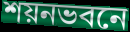
শয়নভবনে